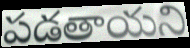
పడతాయని